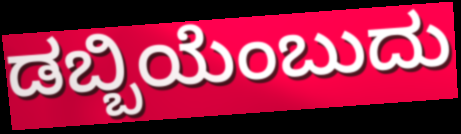
ಡಬ್ಬಿಯೆಂಬುದು